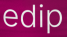
edip